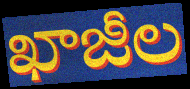
ఖాజీల